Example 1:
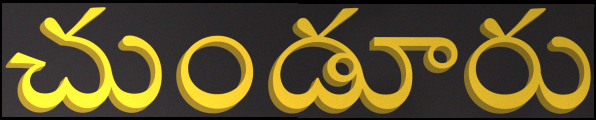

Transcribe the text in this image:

చుండూరు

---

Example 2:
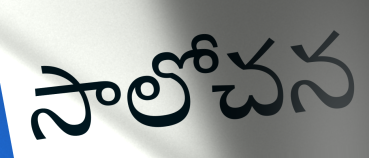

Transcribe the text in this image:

సాలోచన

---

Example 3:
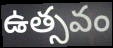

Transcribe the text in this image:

ఉత్సవం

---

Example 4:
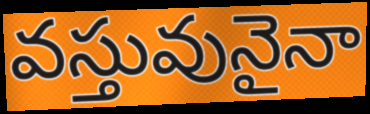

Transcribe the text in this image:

వస్తువునైనా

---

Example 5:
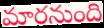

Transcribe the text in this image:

మారనుంది